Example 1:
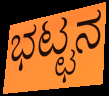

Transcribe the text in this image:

ಭಟ್ಟನ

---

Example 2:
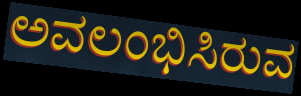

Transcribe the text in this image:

ಅವಲಂಭಿಸಿರುವ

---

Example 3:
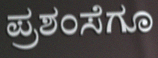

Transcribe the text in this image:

ಪ್ರಶಂಸೆಗೂ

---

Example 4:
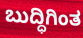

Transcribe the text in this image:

ಬುದ್ಧಿಗಿಂತ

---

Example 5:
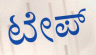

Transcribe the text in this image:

ಟೇಪ್